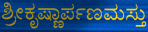
ಶ್ರೀಕೃಷ್ಣಾರ್ಪಣಮಸ್ತು